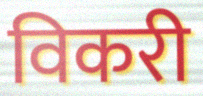
विकरी